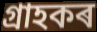
গ্ৰাহকৰ